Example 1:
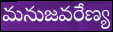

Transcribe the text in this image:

మనుజవరేణ్య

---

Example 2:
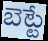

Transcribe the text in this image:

బెట్టే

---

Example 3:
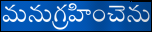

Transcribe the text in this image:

మనుగ్రహించెను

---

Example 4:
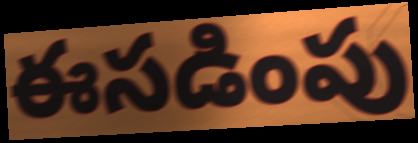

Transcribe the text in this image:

ఈసడింపు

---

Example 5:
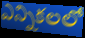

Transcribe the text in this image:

ఎన్నికలలో